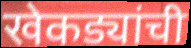
खेकड्यांची